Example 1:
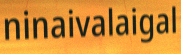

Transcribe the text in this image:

ninaivalaigal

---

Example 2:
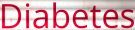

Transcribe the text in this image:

Diabetes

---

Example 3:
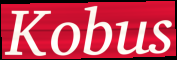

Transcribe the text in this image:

Kobus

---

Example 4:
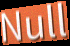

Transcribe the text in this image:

Null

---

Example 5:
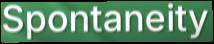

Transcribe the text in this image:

Spontaneity